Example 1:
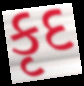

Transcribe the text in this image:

કૃદ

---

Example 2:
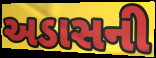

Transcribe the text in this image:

અડાસની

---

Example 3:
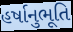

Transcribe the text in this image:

હર્ષાનુભૂતિ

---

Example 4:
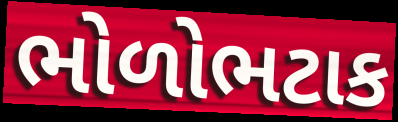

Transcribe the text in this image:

ભોળોભટાક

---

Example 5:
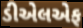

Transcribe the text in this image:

ડીએલએફ